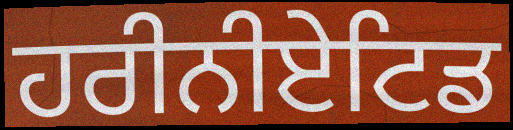
ਹਰੀਨੀਏਟਿਡ